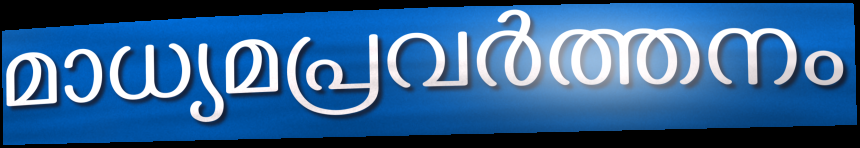
മാധ്യമപ്രവർത്തനം